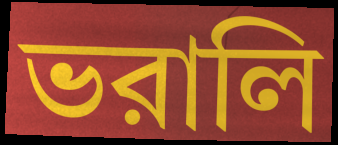
ভরালি